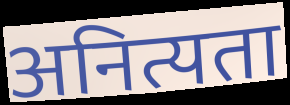
अनित्यता